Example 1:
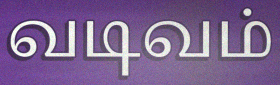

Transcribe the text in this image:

வடிவம்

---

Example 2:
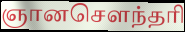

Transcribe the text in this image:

ஞானசெளந்தரி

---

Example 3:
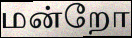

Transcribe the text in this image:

மன்றோ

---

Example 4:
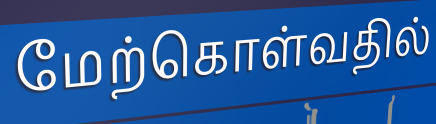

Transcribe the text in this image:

மேற்கொள்வதில்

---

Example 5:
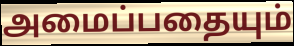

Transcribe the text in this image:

அமைப்பதையும்